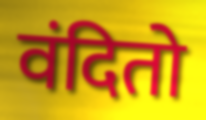
वंदितो